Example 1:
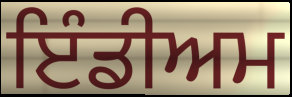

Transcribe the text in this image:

ਇੰਡੀਅਮ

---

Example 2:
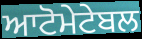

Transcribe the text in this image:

ਆਟੋਮੇਟੇਬਲ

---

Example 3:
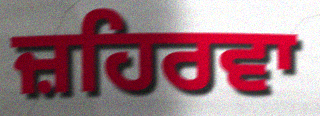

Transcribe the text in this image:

ਜ਼ਹਿਰਵਾ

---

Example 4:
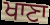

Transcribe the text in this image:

ਖਾਣਾ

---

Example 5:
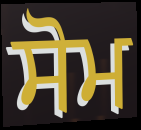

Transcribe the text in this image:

ਸੋਮ